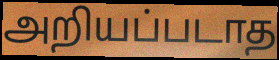
அறியப்படாத